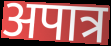
अपात्र